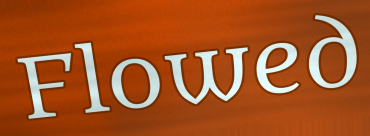
Flowed